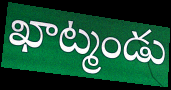
ఖాట్మండు